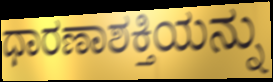
ಧಾರಣಾಶಕ್ತಿಯನ್ನು